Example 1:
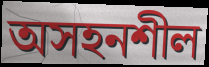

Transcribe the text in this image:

অসহনশীল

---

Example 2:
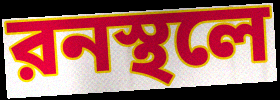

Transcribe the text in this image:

রনস্থলে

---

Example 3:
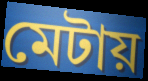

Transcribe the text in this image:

মেটায়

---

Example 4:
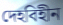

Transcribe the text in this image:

দেহবিহীন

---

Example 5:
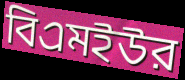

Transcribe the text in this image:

বিএমইউর